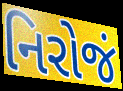
નિરોજં